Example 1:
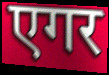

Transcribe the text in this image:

एगर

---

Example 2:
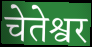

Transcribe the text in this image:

चेतेश्वर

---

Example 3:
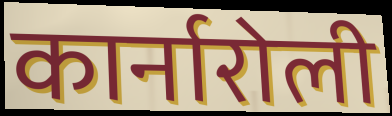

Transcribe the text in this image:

कार्नारोली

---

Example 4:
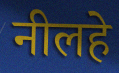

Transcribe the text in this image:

नीलहे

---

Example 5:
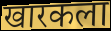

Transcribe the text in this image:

खारकला